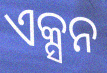
ଏକ୍ସନ